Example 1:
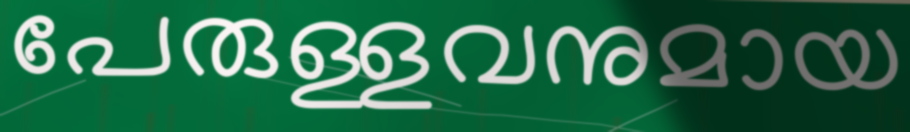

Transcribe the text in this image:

പേരുള്ളവനുമായ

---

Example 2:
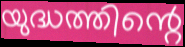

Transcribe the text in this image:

യുദ്ധത്തിന്റെ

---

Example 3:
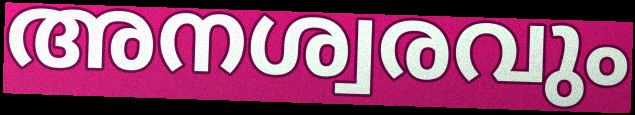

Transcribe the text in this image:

അനശ്വരവും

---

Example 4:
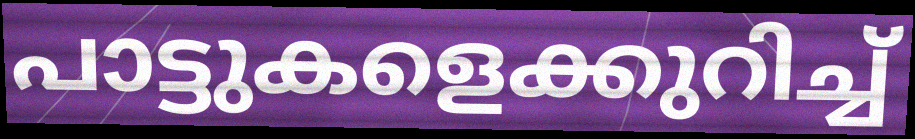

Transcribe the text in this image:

പാട്ടുകളെക്കുറിച്ച്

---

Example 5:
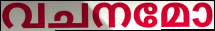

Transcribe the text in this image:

വചനമോ